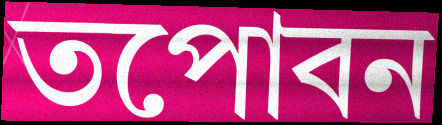
তপোবন